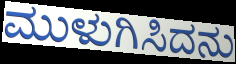
ಮುಳುಗಿಸಿದನು